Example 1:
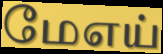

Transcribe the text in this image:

மேஎய்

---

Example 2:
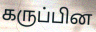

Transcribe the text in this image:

கருப்பின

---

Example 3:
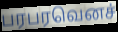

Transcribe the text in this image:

பரபரவெனச்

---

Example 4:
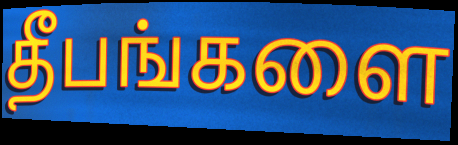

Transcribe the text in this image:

தீபங்களை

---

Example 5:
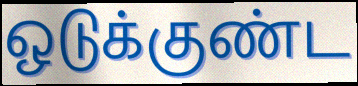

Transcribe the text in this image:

ஒடுக்குண்ட